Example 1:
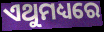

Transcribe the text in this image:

ଏଥୁମଧ୍ୟରେ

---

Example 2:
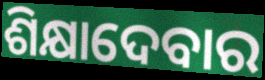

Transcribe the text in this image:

ଶିକ୍ଷାଦେବାର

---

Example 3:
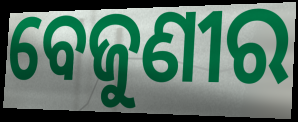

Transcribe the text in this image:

ବେଜୁଣୀର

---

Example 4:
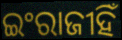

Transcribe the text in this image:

ଇଂରାଜୀହିଁ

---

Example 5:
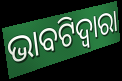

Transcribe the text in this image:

ଭାବଟିଦ୍ୱାରା